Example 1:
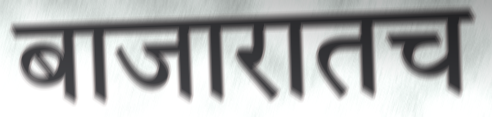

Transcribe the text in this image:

बाजारातच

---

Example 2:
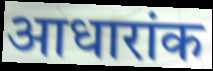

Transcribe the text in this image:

आधारांक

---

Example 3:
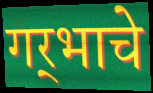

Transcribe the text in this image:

गर्भाचे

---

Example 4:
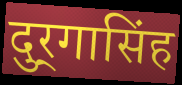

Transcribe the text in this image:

दुर्गासिंह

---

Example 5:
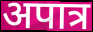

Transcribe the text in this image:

अपात्र